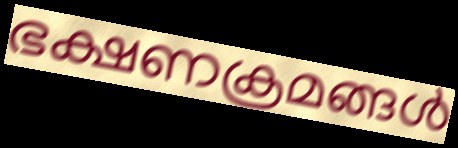
ഭക്ഷണക്രമങ്ങൾ